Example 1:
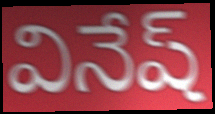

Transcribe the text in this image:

వినేష్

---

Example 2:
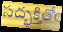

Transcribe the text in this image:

సద్భక్తితోఁ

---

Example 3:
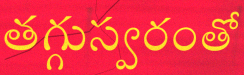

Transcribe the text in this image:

తగ్గుస్వరంతో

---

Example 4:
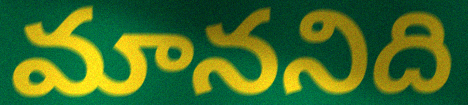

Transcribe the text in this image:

మాననిది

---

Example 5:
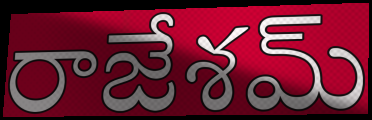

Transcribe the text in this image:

రాజేశమ్